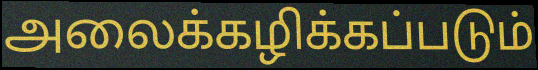
அலைக்கழிக்கப்படும்